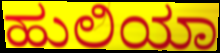
ಹುಲಿಯಾ